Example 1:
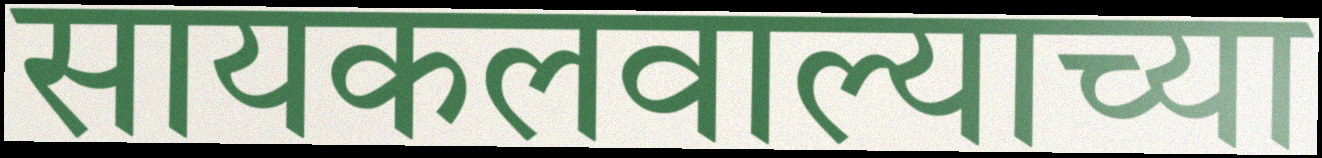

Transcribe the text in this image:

सायकलवाल्याच्या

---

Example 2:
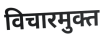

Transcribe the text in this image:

विचारमुक्त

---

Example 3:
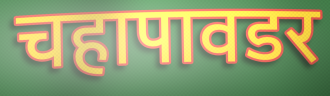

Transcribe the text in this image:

चहापावडर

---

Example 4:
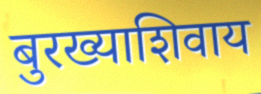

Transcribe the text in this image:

बुरख्याशिवाय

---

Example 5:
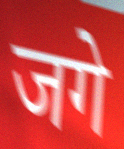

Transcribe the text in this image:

जगे